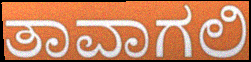
ತಾವಾಗಲಿ